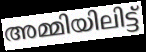
അമ്മിയിലിട്ട്